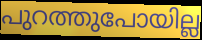
പുറത്തുപോയില്ല